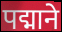
पद्माने